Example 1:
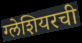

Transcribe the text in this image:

ग्लेशियरची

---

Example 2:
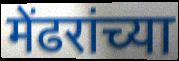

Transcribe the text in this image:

मेंढरांच्या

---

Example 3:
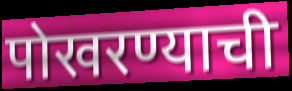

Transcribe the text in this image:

पोखरण्याची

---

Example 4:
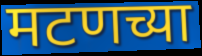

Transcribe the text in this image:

मटणच्या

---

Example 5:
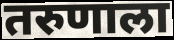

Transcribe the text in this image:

तरुणाला